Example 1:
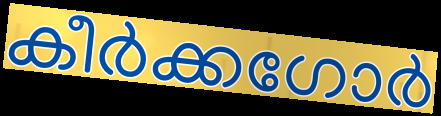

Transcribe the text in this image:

കീർക്കഗോർ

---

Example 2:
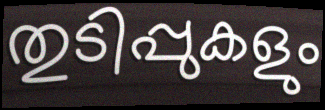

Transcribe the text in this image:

തുടിപ്പുകളും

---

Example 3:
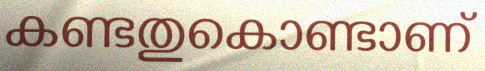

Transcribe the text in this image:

കണ്ടതുകൊണ്ടാണ്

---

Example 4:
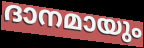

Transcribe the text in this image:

ദാനമായും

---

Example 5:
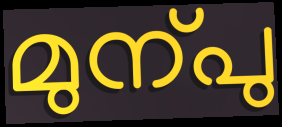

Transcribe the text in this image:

മുന്പു